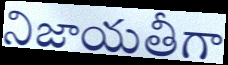
నిజాయతీగా